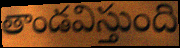
తాండవిస్తుంది